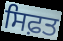
ਸਿਫ਼ਤ